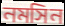
নমসিন